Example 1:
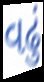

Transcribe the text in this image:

વઢું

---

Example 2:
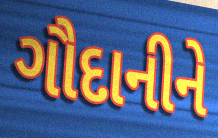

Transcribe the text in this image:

ગૌદાનીને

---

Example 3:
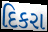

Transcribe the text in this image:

દિકરા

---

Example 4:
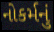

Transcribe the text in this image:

નોકર્મનું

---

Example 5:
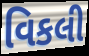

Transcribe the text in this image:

વિકલી